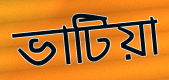
ভাটিয়া